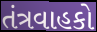
તંત્રવાહકો